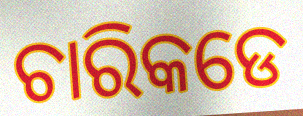
ଚାରିକଡେ